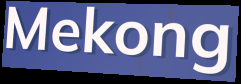
Mekong